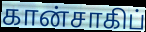
கான்சாகிப்